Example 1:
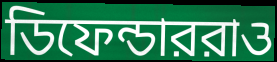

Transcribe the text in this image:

ডিফেন্ডাররাও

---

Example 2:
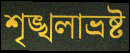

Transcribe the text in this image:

শৃঙ্খলাভ্রষ্ট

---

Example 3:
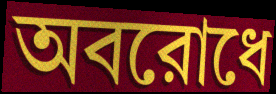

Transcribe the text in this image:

অবরোধে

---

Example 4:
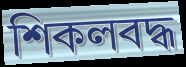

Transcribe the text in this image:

শিকলবদ্ধ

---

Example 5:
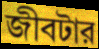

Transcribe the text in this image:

জীবটার